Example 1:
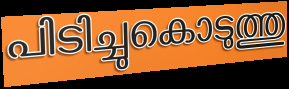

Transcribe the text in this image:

പിടിച്ചുകൊടുത്തു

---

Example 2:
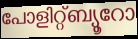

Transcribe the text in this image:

പോളിറ്റ്ബ്യൂറോ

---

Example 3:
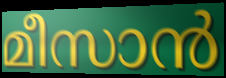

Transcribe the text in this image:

മീസാൻ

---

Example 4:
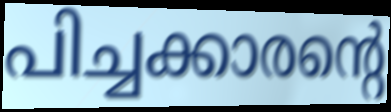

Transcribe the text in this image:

പിച്ചക്കാരന്റെ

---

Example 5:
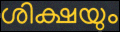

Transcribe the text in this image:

ശിക്ഷയും